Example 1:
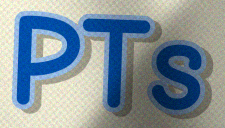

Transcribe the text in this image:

PTs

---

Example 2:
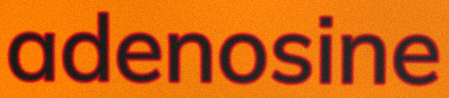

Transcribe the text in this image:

adenosine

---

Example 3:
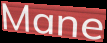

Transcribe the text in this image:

Mane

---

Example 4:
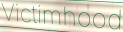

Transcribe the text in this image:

Victimhood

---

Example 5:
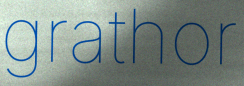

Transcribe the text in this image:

grathor